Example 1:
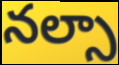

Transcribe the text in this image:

నల్సా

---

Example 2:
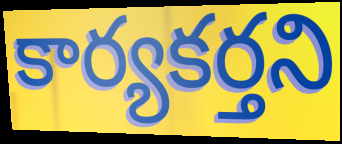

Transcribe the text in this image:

కార్యకర్తని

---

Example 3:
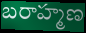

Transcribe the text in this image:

బరాహ్మణ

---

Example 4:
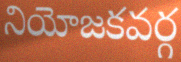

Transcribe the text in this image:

నియోజకవర్గ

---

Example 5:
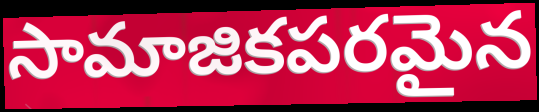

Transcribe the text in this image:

సామాజికపరమైన